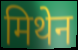
मिथेन